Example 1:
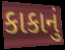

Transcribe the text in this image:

કાકાનું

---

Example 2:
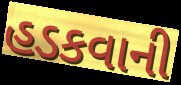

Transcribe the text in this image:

હડકવાની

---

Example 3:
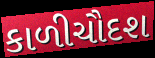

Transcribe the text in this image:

કાળીચૌદશ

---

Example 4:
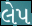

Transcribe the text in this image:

લેપ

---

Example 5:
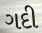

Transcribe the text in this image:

ગદી